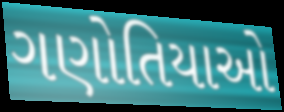
ગણોતિયાઓ